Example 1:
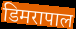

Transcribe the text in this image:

डिमरापाल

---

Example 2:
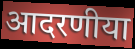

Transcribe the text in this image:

आदरणीया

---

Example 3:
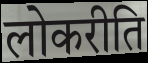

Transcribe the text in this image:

लोकरीति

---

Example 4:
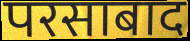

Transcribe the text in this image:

परसाबाद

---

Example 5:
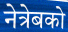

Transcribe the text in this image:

नेत्रेबको